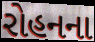
રોહનના